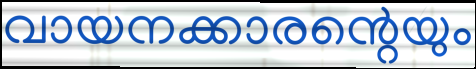
വായനക്കാരന്റെയും